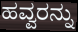
ಹವ್ವರನ್ನು